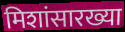
मिशांसारख्या